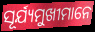
ସୂର୍ଯ୍ୟମୁଖୀମାନେ